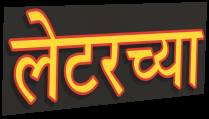
लेटरच्या